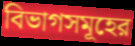
বিভাগসমূহের